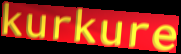
kurkure